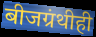
बीजग्रंथीही